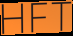
HFT